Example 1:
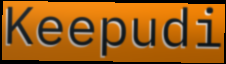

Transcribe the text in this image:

Keepudi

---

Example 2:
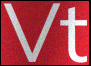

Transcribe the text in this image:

Vt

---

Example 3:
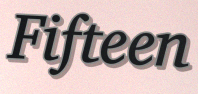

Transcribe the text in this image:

Fifteen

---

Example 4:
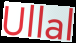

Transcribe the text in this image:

Ullal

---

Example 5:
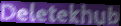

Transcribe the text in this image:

Deletekhub